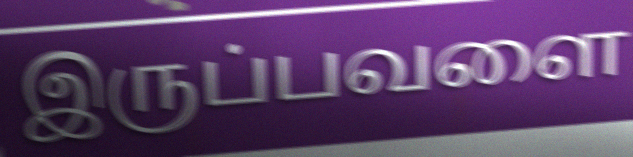
இருப்பவளை